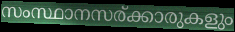
സംസ്ഥാനസര്ക്കാരുകളും